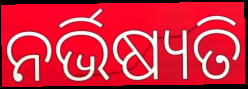
ନର୍ଭିଷ୍ୟତି